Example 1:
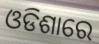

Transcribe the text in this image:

ଓଡିଶାରେ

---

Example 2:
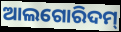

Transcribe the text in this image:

ଆଲଗୋରିଦମ୍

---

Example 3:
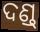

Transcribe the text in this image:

ଦଣ୍ଡ୍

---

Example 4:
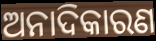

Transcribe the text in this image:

ଅନାଦିକାରଣ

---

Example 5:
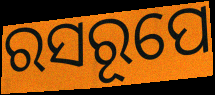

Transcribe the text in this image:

ରସରୂପେ